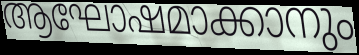
ആഘോഷമാക്കാനും